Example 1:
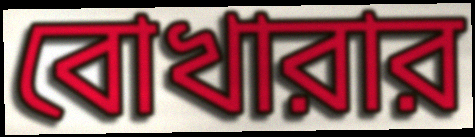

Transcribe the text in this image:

বোখারার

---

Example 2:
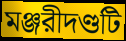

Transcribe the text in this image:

মঞ্জরীদণ্ডটি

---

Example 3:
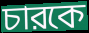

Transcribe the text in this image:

চারকে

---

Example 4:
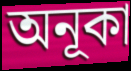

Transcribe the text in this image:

অনূকা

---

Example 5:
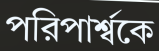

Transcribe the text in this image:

পরিপার্শ্বকে